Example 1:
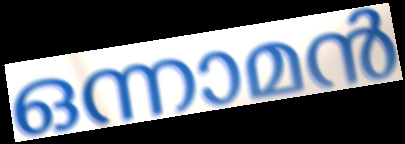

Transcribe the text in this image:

ഒന്നാമൻ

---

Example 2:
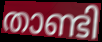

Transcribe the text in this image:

താണ്ടി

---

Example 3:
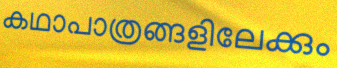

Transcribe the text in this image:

കഥാപാത്രങ്ങളിലേക്കും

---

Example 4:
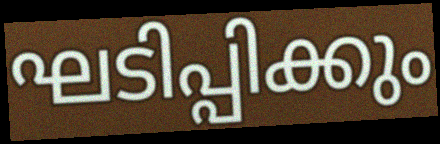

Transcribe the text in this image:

ഘടിപ്പിക്കും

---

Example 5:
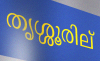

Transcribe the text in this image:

തൃശ്ശൂരില്